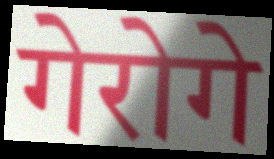
गेरोगे